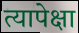
त्यापेक्षा